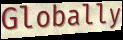
Globally